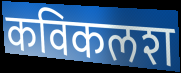
कविकलश